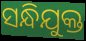
ସନ୍ଧିଯୁକ୍ତ